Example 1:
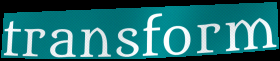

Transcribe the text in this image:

transform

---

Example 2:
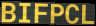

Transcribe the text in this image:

BIFPCL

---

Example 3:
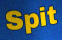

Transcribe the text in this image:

Spit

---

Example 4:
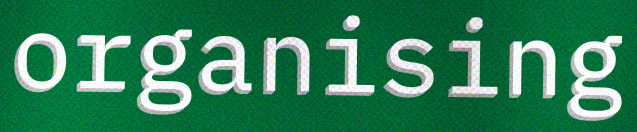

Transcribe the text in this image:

organising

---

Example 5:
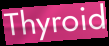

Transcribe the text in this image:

Thyroid